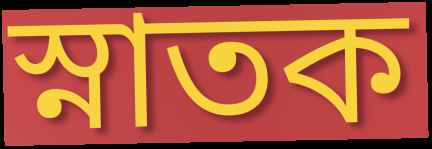
স্নাতক